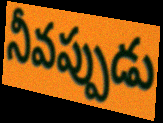
నీవప్పుడు